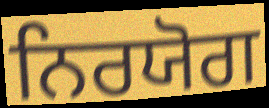
ਨਿਰਯੋਗ